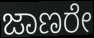
ಜಾಣರೇ